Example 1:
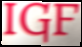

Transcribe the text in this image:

IGF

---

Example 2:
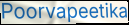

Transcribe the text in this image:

Poorvapeetika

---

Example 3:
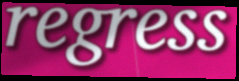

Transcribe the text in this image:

regress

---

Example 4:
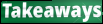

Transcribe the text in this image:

Takeaways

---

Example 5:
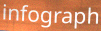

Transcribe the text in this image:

infograph